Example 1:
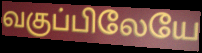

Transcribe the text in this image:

வகுப்பிலேயே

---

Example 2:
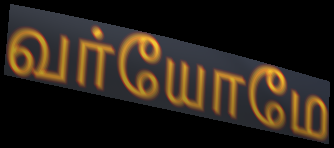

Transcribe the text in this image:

வர்யோமே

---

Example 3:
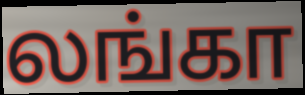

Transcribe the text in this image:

லங்கா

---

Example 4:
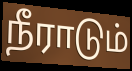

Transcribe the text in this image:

நீராடும்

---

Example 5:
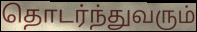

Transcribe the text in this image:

தொடர்ந்துவரும்